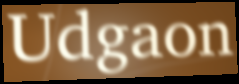
Udgaon